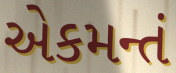
એકમન્તં